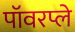
पॉवरप्ले